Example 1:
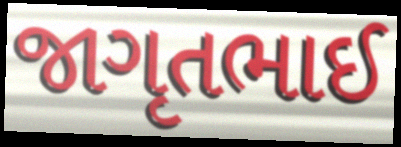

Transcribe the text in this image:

જાગૃતભાઈ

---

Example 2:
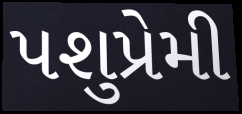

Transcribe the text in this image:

પશુપ્રેમી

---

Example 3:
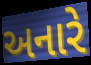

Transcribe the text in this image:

અનારે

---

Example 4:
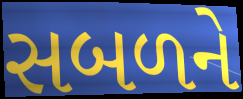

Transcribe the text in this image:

સબળને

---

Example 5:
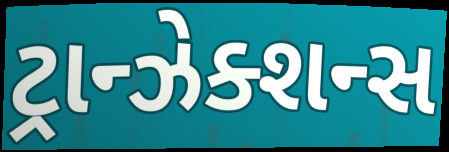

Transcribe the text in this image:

ટ્રાન્ઝેક્શન્સ